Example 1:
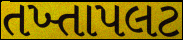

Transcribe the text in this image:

તખ્તાપલટ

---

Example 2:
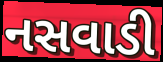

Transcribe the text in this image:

નસવાડી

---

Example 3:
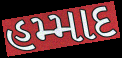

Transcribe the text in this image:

હમ્માદ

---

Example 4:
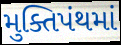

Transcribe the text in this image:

મુક્તિપંથમાં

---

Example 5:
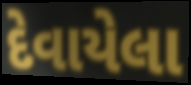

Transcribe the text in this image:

દેવાયેલા